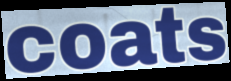
coats